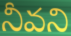
నీవని